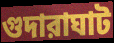
গুদারাঘাট